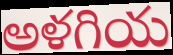
అళగియ